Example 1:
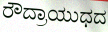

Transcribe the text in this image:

ರೌದ್ರಾಯುಧದ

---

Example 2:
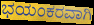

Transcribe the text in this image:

ಭಯಂಕರವಾಗಿ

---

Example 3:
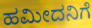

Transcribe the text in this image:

ಹಮೀದನಿಗೆ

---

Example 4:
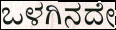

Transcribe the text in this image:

ಒಳಗಿನದೇ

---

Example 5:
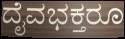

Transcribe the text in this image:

ದೈವಭಕ್ತರೂ